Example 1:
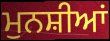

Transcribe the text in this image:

ਮੁਨਸ਼ੀਆਂ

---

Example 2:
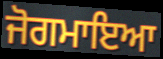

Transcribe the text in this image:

ਜੋਗਮਾਇਆ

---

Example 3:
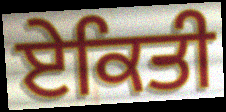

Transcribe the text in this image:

ਏਕਿਤੀ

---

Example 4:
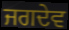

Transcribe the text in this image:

ਜਗਦੇਵ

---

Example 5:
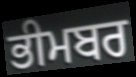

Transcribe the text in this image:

ਭੀਮਬਰ